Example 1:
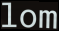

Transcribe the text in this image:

lom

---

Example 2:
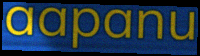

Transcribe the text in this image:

aapanu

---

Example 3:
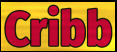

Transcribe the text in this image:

Cribb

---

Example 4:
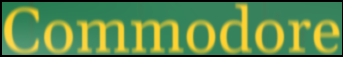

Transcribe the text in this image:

Commodore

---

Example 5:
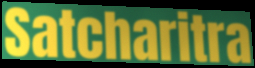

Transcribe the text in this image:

Satcharitra